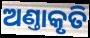
ଅଣ୍ତାକୃତି